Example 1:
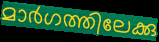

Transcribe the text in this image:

മാർഗത്തിലേക്കു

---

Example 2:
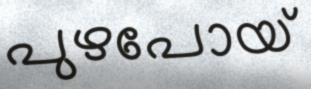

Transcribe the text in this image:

പുഴപോയ്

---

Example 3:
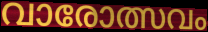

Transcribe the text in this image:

വാരോത്സവം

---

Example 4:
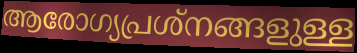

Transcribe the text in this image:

ആരോഗ്യപ്രശ്നങ്ങളുള്ള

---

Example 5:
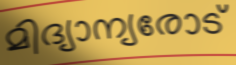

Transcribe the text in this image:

മിദ്യാന്യരോട്